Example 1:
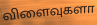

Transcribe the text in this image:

விளைவுகளா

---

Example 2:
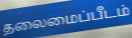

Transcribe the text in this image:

தலைமைப்பீடம்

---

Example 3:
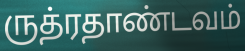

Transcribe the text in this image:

ருத்ரதாண்டவம்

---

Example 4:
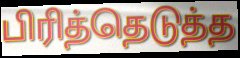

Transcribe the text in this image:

பிரித்தெடுத்த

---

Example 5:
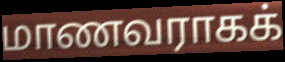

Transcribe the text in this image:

மாணவராகக்